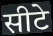
सीटे